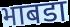
भाबडा